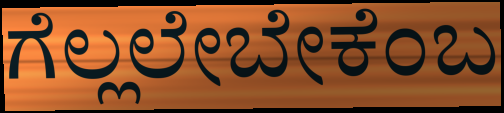
ಗೆಲ್ಲಲೇಬೇಕೆಂಬ